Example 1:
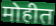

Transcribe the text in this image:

मोहीत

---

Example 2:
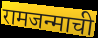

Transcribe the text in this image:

रामजन्माची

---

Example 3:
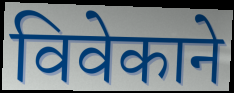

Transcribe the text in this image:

विवेकाने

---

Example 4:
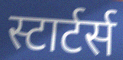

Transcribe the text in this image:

स्टार्टर्स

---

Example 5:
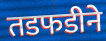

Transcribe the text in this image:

तडफडीने